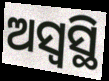
ଅସ୍ୱସ୍ଥି